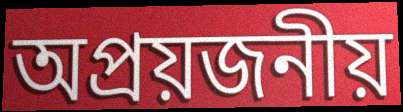
অপ্রয়জনীয়